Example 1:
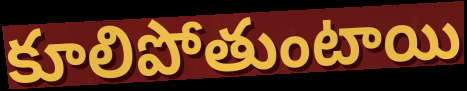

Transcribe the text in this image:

కూలిపోతుంటాయి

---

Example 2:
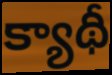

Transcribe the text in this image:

క్యాథీ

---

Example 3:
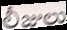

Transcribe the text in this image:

లీజులు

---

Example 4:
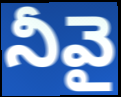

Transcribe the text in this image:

నీవై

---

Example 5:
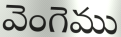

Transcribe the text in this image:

వెంగెము